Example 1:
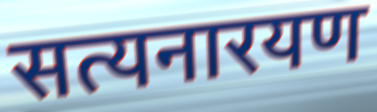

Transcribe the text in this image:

सत्यनारयण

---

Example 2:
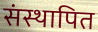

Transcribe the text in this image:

संस्थापित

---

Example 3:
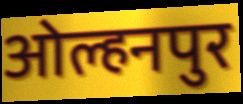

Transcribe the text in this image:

ओल्हनपुर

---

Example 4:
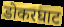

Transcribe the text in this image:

डोकरघाट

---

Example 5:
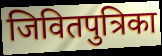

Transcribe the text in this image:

जिवितपुत्रिका